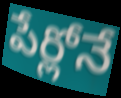
పేర్లోనే